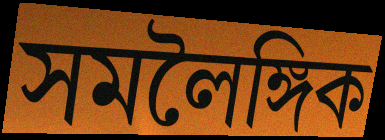
সমলৈঙ্গিক